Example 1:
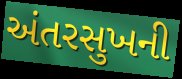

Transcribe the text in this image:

અંતરસુખની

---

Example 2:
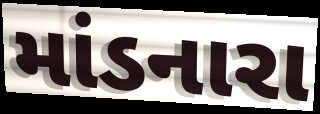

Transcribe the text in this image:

માંડનારા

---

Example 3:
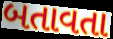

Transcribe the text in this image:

બતાવતા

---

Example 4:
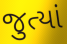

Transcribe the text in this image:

જુત્યાં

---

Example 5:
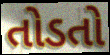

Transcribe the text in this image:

તોડતો